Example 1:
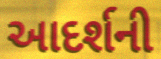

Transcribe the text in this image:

આદર્શની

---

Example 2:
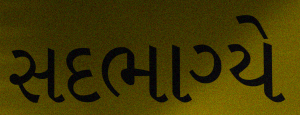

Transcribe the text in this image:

સદભાગ્યે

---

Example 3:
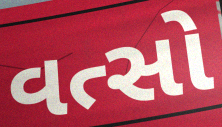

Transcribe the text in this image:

વત્સો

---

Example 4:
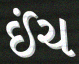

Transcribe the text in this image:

ઈંચ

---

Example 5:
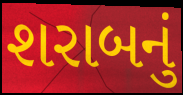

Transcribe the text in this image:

શરાબનું